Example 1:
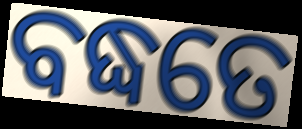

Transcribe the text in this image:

ବଦ୍ଧତେ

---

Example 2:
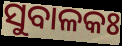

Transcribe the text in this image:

ସୁବାଳକଃ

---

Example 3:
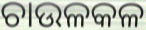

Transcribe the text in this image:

ଚାଉଳକଳ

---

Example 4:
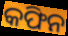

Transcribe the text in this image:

କଫିନ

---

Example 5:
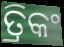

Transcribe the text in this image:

ତ୍ରିକଂ